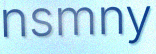
nsmny